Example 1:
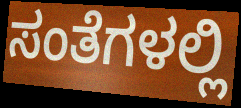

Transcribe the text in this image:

ಸಂತೆಗಳಲ್ಲಿ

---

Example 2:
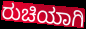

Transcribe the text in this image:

ರುಚಿಯಾಗಿ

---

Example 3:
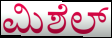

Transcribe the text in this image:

ಮಿಶೆಲ್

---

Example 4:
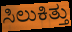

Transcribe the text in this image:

ಸಿಲುಕಿತ್ತು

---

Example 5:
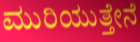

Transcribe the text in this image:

ಮುರಿಯುತ್ತೇನೆ